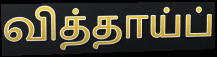
வித்தாய்ப்